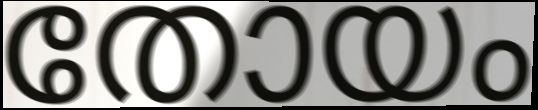
തോയം